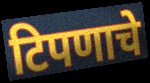
टिपणाचे